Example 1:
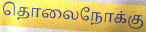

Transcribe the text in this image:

தொலைநோக்கு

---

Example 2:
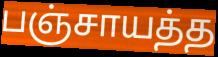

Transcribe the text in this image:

பஞ்சாயத்த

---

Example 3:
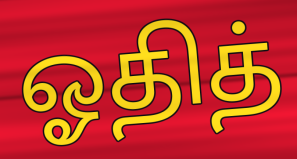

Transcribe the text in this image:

ஓதித்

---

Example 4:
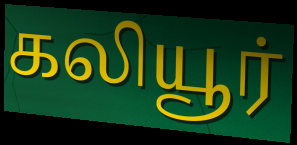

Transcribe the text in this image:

கலியூர்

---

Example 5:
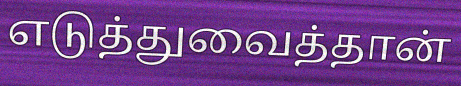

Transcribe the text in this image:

எடுத்துவைத்தான்